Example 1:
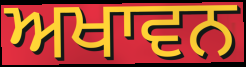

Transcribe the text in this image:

ਅਖਾਵਨ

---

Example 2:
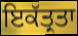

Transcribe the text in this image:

ਇਕੱਤ੍ਰਤਾ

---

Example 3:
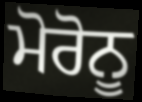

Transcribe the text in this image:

ਮੋਰੋਨੂ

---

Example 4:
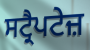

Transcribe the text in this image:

ਸਟ੍ਰੈਪਟੇਜ਼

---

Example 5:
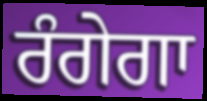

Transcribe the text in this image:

ਰੰਗੇਗਾ